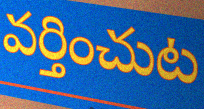
వర్తించుట